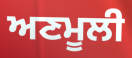
ਅਣਮੂਲੀ